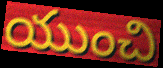
యుంచి